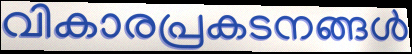
വികാരപ്രകടനങ്ങൾ